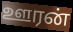
ஊரன்